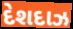
દેશદાઝ